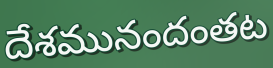
దేశమునందంతట